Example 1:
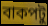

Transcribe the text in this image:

বাকপটু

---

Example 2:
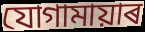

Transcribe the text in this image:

যোগামায়াৰ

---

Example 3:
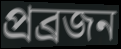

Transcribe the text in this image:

প্ৰব্ৰজন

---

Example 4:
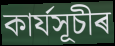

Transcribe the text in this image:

কাৰ্যসূচীৰ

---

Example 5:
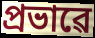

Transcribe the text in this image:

প্ৰভাৱে